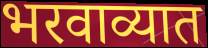
भरवाव्यात